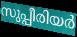
സുപ്പീരിയർ